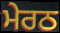
ਮੇਰਠ